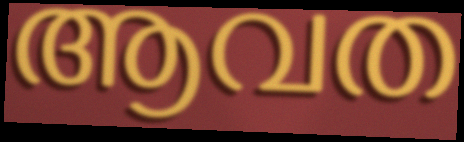
ആവത